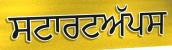
ਸਟਾਰਟਅੱਪਸ